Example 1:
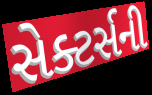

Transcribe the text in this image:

સેક્ટર્સની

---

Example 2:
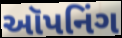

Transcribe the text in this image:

ઑપનિંગ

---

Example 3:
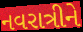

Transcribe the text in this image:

નવરાત્રીને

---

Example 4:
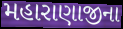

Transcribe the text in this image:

મહારાણાજીના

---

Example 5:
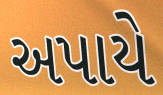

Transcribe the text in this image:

અપાયે